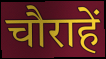
चौराहें